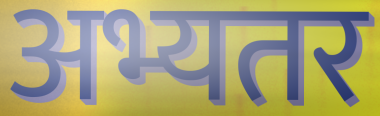
अभ्यतर